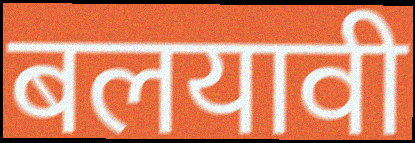
बलयावी